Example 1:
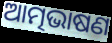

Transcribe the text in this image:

ଆତ୍ମଭାଷଣ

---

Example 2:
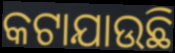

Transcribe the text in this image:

କଟାଯାଉଛି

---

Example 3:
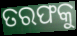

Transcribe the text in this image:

ତରଫକୁ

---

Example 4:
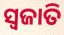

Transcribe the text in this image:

ସ୍ବଜାତି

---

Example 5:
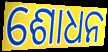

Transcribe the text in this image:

ଶୋଧନ